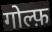
गोल्फ़